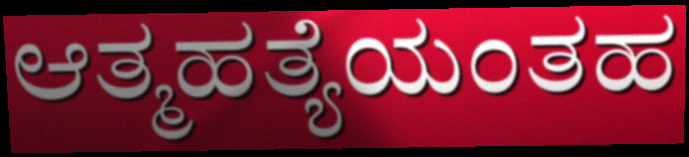
ಆತ್ಮಹತ್ಯೆಯಂತಹ